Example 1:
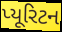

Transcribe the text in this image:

પ્યૂરિટન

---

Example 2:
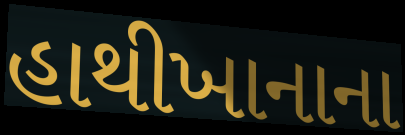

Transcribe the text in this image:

હાથીખાનાના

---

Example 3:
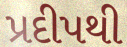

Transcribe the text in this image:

પ્રદીપથી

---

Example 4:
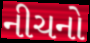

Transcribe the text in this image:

નીચનો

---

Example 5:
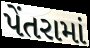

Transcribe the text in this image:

પેંતરામાં